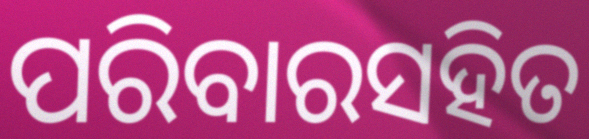
ପରିବାରସହିତ